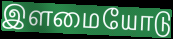
இளமையோடு